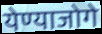
येण्याजोगे